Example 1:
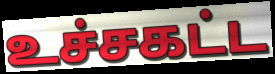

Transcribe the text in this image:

உச்சகட்ட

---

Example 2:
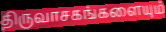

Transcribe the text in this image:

திருவாசகங்களையும்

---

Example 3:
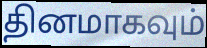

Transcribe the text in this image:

தினமாகவும்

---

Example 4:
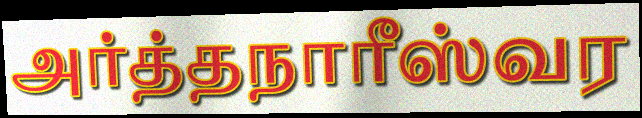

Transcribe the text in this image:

அர்த்தநாரீஸ்வர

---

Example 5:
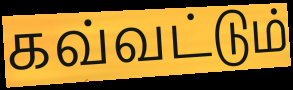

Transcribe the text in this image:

கவ்வட்டும்